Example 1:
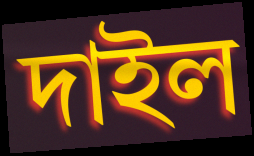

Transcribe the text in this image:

দাইল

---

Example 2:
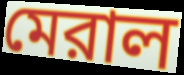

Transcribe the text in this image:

মেরাল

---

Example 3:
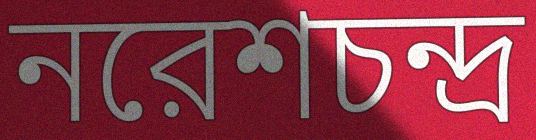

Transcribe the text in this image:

নরেশচন্দ্র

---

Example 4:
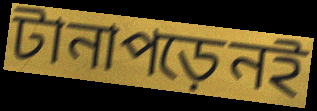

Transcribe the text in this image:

টানাপড়েনই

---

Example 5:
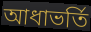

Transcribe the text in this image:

আধাভর্তি